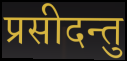
प्रसीदन्तु